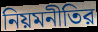
নিয়মনীতির